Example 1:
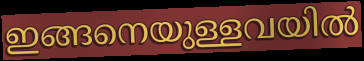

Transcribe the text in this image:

ഇങ്ങനെയുള്ളവയിൽ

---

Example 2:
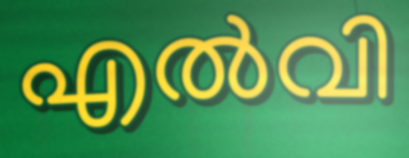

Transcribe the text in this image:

എൽവി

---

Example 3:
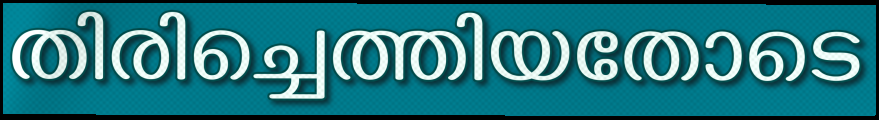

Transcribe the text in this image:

തിരിച്ചെത്തിയതോടെ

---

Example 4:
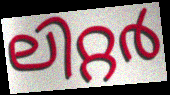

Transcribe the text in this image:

ലിറ്റർ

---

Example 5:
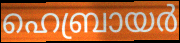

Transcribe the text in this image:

ഹെബ്രായർ